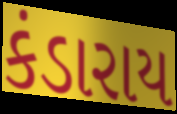
કંડારાય